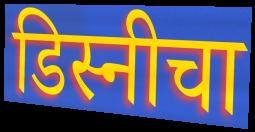
डिस्नीचा